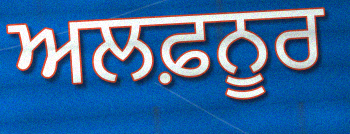
ਅਲਫ਼ਨੂਰ